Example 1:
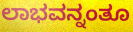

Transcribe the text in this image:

ಲಾಭವನ್ನಂತೂ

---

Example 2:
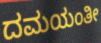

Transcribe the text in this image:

ದಮಯಂತೀ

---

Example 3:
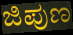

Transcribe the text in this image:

ಜಿಪುಣ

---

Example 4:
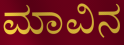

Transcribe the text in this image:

ಮಾವಿನ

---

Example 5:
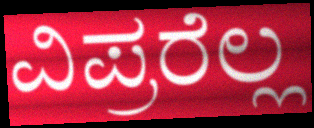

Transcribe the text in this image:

ವಿಪ್ರರೆಲ್ಲ